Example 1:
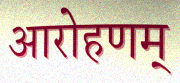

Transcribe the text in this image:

आरोहणम्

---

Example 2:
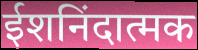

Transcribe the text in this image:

ईशनिंदात्मक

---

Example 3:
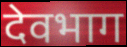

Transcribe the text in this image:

देवभाग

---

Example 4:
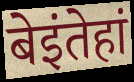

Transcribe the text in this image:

बेइंतेहां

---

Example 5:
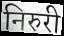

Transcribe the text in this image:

निरुरी